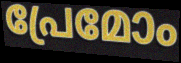
പ്രേമോം